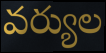
వర్యుల